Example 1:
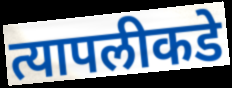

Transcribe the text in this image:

त्यापलीकडे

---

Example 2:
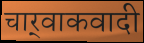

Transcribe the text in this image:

चार्वाकवादी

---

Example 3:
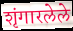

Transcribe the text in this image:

शृंगारलेले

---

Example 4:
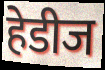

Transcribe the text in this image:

हेडीज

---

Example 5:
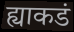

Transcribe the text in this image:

ह्याकडं